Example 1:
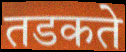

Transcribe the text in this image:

तडकते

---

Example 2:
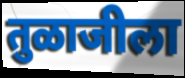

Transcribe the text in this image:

तुळाजीला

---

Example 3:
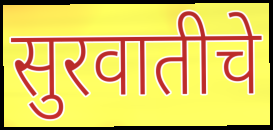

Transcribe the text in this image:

सुरवातीचे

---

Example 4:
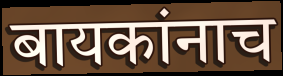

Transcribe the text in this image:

बायकांनाच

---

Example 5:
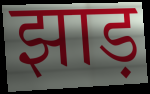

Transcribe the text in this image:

झाड़